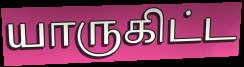
யாருகிட்ட